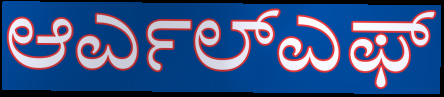
ಆರ್ಎಲ್ಎಫ್